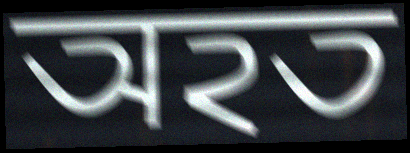
অহত